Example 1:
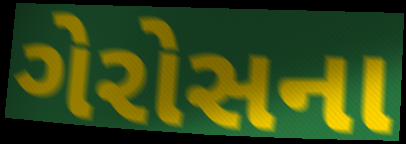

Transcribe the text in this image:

ગેરોસના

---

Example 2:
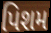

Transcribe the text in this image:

પિશમ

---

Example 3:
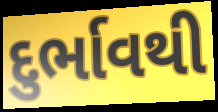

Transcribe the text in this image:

દુર્ભાવથી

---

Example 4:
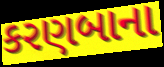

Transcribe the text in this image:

કરણબાના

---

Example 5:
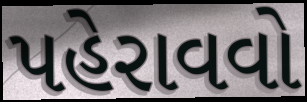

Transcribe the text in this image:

પહેરાવવો